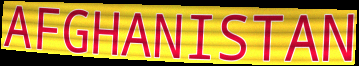
AFGHANISTAN